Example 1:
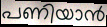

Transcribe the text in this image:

പണിയാൻ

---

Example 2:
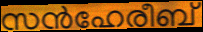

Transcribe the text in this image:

സൻഹേരീബ്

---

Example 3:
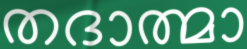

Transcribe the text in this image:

തദാത്മാ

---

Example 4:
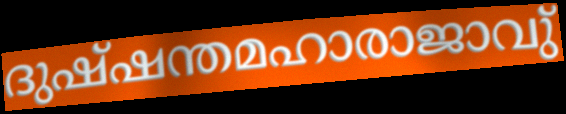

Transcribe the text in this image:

ദുഷ്ഷന്തമഹാരാജാവു്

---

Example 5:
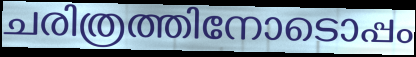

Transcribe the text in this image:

ചരിത്രത്തിനോടൊപ്പം